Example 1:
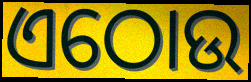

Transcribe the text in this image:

ଏଠୋଉ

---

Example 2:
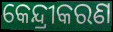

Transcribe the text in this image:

କେନ୍ଦ୍ରୀକରଣ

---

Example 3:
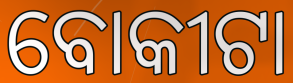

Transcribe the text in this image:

ବୋକୀଟା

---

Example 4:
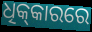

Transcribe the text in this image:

ଧିକ୍‌କାରରେ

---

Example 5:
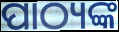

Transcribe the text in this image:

ପାଠ୍ୟଙ୍କ